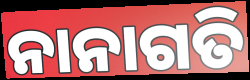
ନାନାଗତି